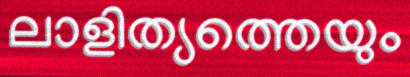
ലാളിത്യത്തെയും